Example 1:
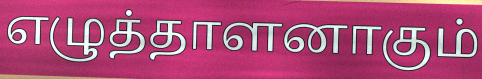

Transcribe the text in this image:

எழுத்தாளனாகும்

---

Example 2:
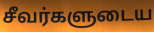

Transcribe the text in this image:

சீவர்களுடைய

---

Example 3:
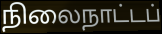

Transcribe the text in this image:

நிலைநாட்டப்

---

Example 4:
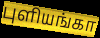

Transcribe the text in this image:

புளியங்கா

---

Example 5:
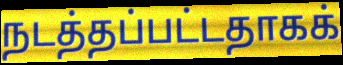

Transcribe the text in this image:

நடத்தப்பட்டதாகக்